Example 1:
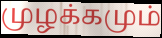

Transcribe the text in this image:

முழக்கமும்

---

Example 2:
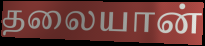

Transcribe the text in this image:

தலையான்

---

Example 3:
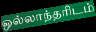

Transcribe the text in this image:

ஒல்லாந்தரிடம்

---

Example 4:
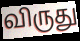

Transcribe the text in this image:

விருது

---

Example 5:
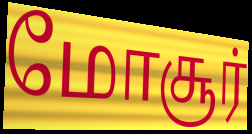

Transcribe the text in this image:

மோசூர்